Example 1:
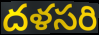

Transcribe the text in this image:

దళసరి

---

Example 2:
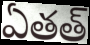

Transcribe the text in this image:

ఏతత్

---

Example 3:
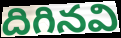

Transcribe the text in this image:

దిగినవి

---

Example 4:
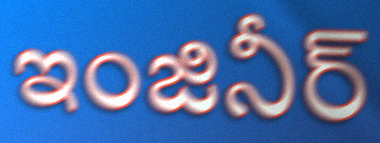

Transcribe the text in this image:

ఇంజినీర్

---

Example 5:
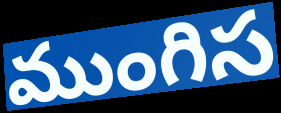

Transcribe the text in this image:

ముంగిస